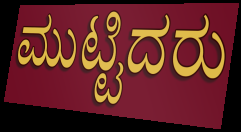
ಮುಟ್ಟಿದರು